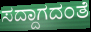
ಸದ್ದಾಗದಂತೆ